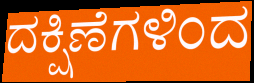
ದಕ್ಷಿಣೆಗಳಿಂದ